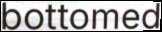
bottomed